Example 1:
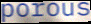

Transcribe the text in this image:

porous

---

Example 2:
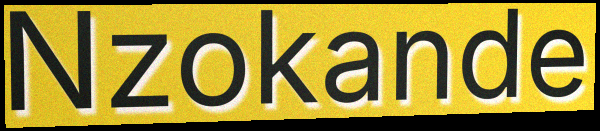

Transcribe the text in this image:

Nzokande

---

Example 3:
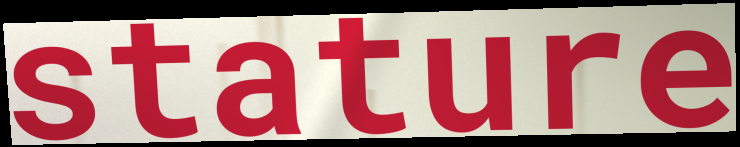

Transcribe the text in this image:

stature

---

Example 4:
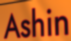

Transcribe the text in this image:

Ashin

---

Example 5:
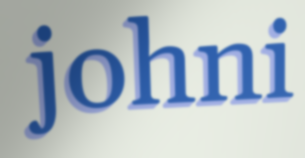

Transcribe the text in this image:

johni